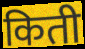
किती